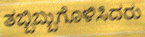
ತಬ್ಬಿಬ್ಬುಗೊಳಿಸಿದರು